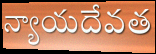
న్యాయదేవత